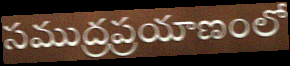
సముద్రప్రయాణంలో